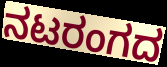
ನಟರಂಗದ